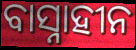
ବାସ୍ନାହୀନ